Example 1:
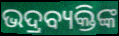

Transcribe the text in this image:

ଭଦ୍ରବ୍ୟକ୍ତିଙ୍କ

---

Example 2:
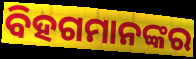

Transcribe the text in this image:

ବିହଗମାନଙ୍କର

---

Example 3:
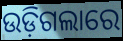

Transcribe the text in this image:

ଉଡ଼ିଗଲାରେ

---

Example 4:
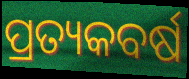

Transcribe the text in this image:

ପ୍ରତ୍ୟକବର୍ଷ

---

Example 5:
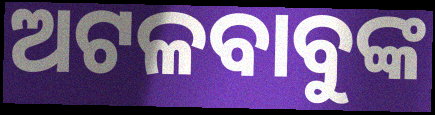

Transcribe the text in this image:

ଅଟଳବାବୁଙ୍କ